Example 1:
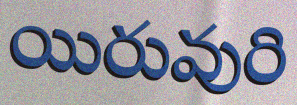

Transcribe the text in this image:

యిరువురి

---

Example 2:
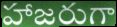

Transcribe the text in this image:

హాజరుగా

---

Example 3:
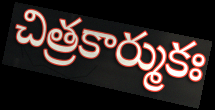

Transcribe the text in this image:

చిత్రకార్ముకః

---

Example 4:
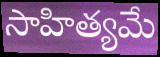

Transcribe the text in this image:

సాహిత్యమే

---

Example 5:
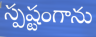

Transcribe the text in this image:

స్పష్టంగాను